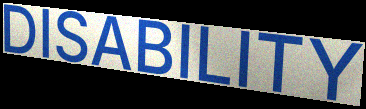
DISABILITY